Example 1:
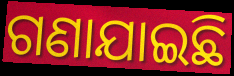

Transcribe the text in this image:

ଗଣାଯାଇଛି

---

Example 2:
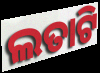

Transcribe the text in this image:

ଲତାଟି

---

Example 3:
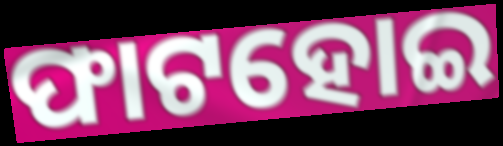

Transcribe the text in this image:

ଫାଟହୋଇ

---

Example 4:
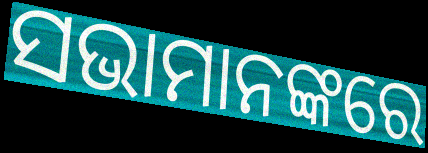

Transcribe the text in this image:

ସଭାମାନଙ୍କରେ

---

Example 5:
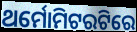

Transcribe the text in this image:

ଥର୍ମୋମିଟରଟିରେ